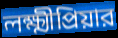
লক্ষ্মীপ্রিয়ার